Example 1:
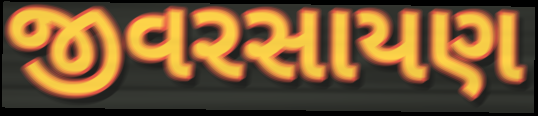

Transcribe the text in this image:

જીવરસાયણ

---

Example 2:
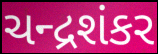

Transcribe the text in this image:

ચન્દ્રશંકર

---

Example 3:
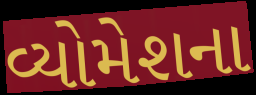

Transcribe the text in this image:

વ્યોમેશના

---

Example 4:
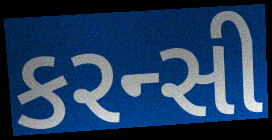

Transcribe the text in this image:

કરન્સી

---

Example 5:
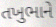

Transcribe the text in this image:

તખુભાને